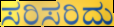
ಸರಿಸರಿದು